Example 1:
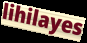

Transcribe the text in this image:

lihilayes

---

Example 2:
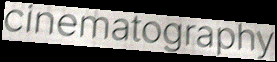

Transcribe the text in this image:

cinematography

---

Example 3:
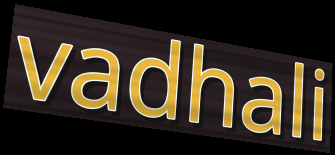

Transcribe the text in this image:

vadhali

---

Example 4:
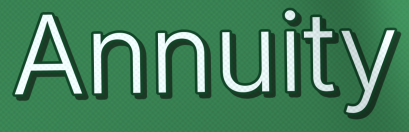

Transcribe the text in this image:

Annuity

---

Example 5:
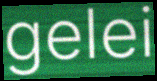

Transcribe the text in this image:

gelei